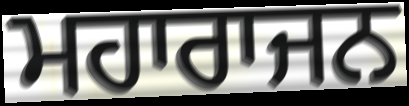
ਮਹਾਰਾਜਨ